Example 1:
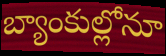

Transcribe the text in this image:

బ్యాంకుల్లోనూ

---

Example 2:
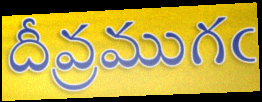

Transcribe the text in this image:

దీవ్రముగఁ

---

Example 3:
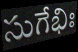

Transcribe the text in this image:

సుగేభిః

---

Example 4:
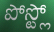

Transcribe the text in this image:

పోస్ట్లో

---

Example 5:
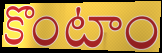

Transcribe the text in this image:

కొంటాం